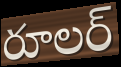
రూలర్